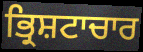
ਭ੍ਰਿਸ਼ਟਾਚਾਰ